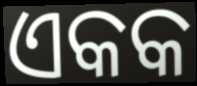
ଏକକ